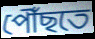
পৌঁছতে